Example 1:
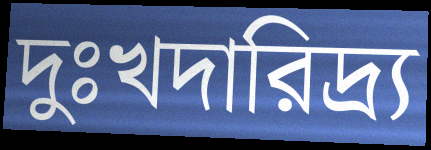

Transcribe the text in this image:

দুঃখদারিদ্র্য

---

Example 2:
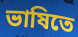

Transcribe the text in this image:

ভাষিতে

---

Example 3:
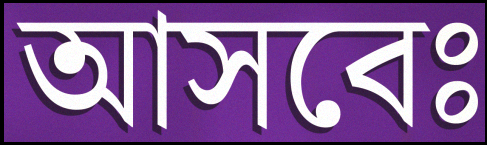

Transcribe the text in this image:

আসবেঃ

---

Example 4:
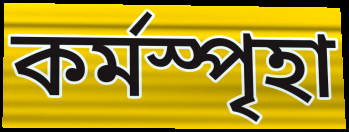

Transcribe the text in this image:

কর্মস্পৃহা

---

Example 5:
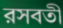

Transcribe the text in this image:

রসবতী